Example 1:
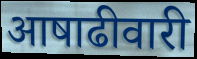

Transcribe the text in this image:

आषाढीवारी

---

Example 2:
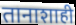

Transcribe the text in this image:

तानाशाही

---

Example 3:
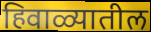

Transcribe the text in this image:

हिवाळ्यातील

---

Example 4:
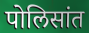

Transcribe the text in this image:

पोलिसांत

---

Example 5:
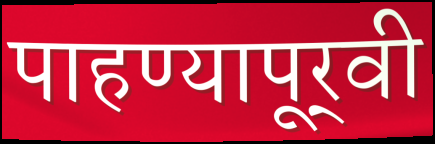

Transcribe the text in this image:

पाहण्यापूर्वी